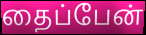
தைப்பேன்